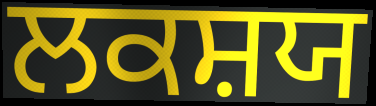
ਲਕਸ਼ਯ